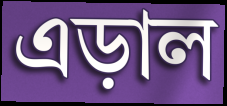
এড়াল